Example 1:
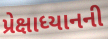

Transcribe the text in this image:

પ્રેક્ષાધ્યાનની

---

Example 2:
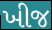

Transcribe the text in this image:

ખીજ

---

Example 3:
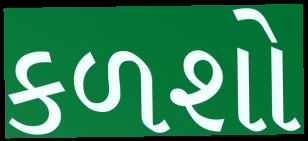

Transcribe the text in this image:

કળશો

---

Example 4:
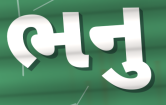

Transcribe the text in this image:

ભનુ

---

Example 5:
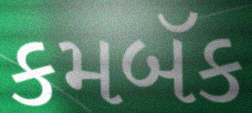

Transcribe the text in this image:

કમબૅક